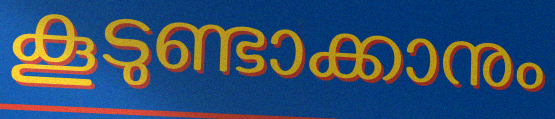
കൂടുണ്ടാക്കാനും